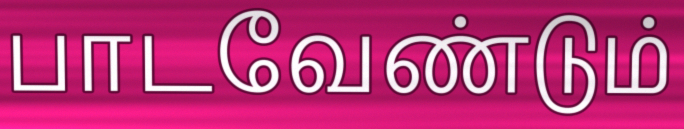
பாடவேண்டும்